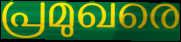
പ്രമുഖരെ